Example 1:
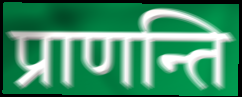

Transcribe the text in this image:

प्राणन्ति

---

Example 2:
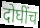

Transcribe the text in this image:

दोघींच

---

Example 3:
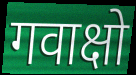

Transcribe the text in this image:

गवाक्षो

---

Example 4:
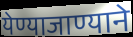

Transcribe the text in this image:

येण्याजाण्याने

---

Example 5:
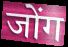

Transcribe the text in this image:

जोंग